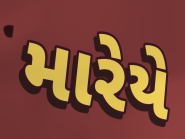
મારેયે